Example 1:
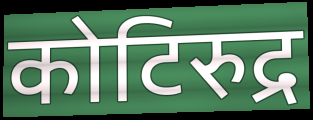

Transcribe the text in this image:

कोटिरुद्र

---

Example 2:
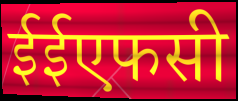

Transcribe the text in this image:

ईईएफसी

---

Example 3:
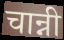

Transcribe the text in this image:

चान्नी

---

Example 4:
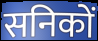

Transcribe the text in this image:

सनिकों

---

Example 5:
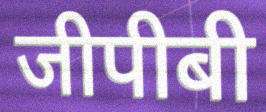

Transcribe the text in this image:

जीपीबी